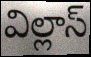
విల్లాస్